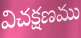
విచక్షణము